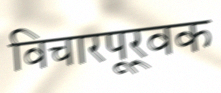
विचारपूर्वक